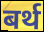
बर्थ